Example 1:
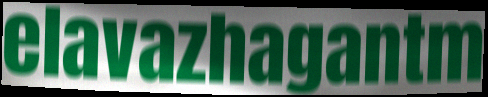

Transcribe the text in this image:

elavazhagantm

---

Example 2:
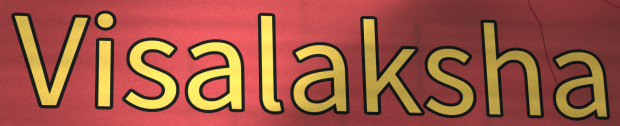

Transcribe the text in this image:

Visalaksha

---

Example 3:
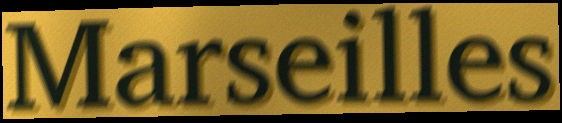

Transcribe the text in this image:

Marseilles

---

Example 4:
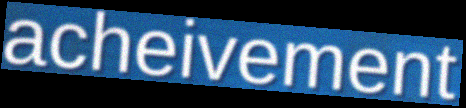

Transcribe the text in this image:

acheivement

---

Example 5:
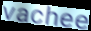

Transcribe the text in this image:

vachee